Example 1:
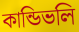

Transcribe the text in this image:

কান্ডিভলি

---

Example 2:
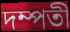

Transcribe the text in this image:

দম্পতী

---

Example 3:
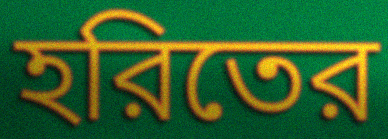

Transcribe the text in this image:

হরিতের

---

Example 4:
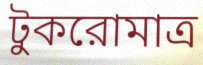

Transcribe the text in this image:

টুকরোমাত্র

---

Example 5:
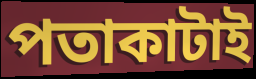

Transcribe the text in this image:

পতাকাটাই